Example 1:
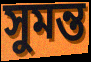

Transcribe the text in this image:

সুমন্ত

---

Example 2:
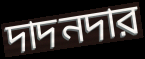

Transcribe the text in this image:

দাদনদার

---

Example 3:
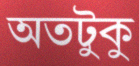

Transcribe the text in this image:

অতটুকু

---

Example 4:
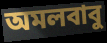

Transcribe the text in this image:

অমলবাবু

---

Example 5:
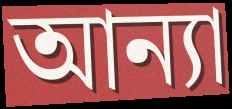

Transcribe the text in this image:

আন্যা